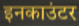
इनकाउंटर